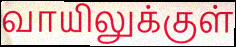
வாயிலுக்குள்